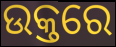
ଉକ୍ତରେ